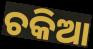
ଚକିଆ